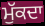
ਮੁੱਕਦਾ